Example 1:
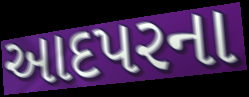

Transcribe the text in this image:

આદપરના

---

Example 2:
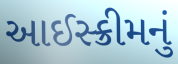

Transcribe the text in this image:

આઈસ્ક્રીમનું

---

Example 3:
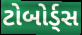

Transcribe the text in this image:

ટોબોર્ડ્સ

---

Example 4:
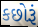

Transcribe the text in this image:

કછોરૂં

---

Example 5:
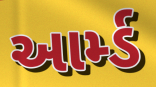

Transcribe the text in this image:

આર્મ્ડ